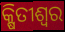
କ୍ଷିତୀଶ୍ୱର